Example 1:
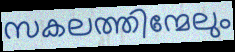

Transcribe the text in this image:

സകലത്തിന്മേലും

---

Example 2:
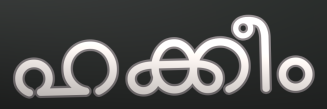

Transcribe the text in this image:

ഹക്കീം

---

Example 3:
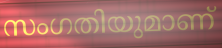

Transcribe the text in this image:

സംഗതിയുമാണ്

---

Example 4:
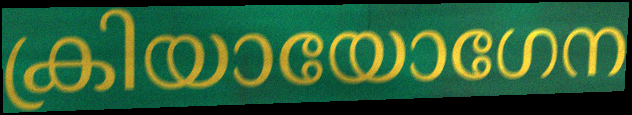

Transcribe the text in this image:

ക്രിയായോഗേന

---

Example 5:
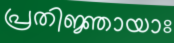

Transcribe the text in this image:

പ്രതിജ്ഞായാഃ